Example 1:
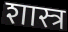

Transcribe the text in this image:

शास्त्र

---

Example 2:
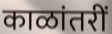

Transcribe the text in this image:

काळांतरीं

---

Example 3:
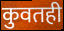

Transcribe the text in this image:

कुवतही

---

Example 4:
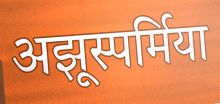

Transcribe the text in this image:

अझूस्पर्मिया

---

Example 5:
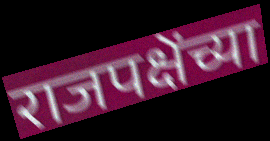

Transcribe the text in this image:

राजपक्षेंच्या